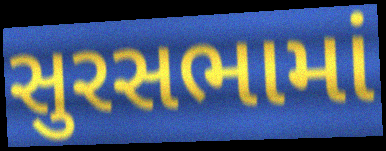
સુરસભામાં